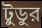
টুডুর